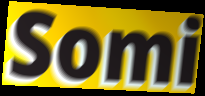
Somi